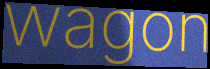
wagon